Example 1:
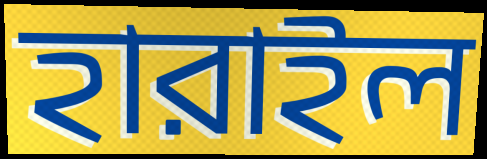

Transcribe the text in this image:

হারাইল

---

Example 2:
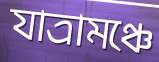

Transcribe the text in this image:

যাত্রামঞ্চে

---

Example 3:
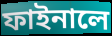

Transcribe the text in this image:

ফাইনালে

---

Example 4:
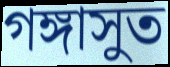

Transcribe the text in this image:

গঙ্গাসুত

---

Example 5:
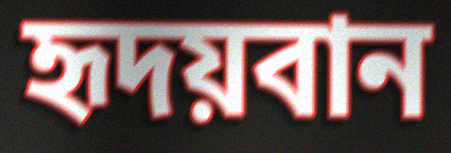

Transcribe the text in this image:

হৃদয়বান